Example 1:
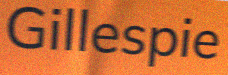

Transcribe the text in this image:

Gillespie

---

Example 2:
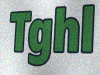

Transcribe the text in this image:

Tghl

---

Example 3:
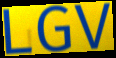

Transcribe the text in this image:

LGV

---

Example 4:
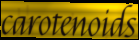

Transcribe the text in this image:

carotenoids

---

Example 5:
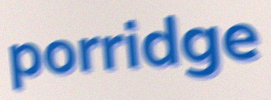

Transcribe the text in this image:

porridge